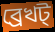
ব্রেখট্